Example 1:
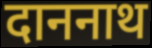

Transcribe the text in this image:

दाननाथ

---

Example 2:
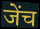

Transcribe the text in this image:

जेंच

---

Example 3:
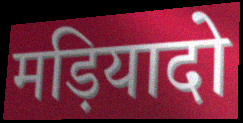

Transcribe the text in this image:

मड़ियादो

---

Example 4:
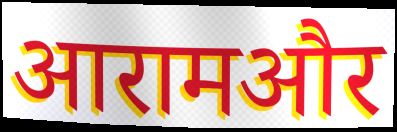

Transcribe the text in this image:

आरामऔर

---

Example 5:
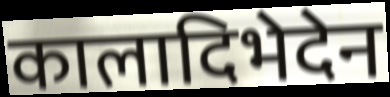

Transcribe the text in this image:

कालादिभेदेन